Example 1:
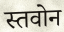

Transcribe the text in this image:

स्तवोन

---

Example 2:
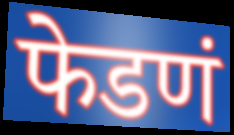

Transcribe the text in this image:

फेडणं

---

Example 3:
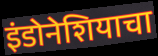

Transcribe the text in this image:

इंडोनेशियाचा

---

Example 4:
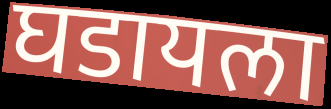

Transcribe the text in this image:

घडायला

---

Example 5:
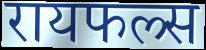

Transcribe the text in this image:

रायफल्स